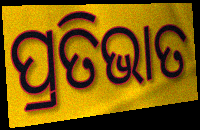
ପ୍ରତିଭାତ